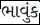
ભાવુંક